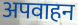
अपवाहन